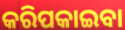
କରିପକାଇବା